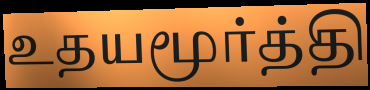
உதயமூர்த்தி